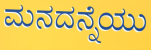
ಮನದನ್ನೆಯು